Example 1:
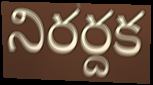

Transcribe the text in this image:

నిరర్దక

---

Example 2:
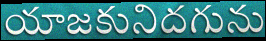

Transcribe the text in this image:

యాజకునిదగును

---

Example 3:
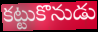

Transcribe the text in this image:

కట్టుకొనుడు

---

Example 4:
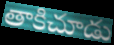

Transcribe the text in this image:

తాకిచూడు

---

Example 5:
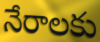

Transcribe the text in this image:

నేరాలకు